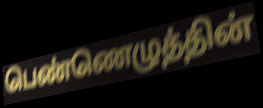
பெண்ணெழுத்தின்